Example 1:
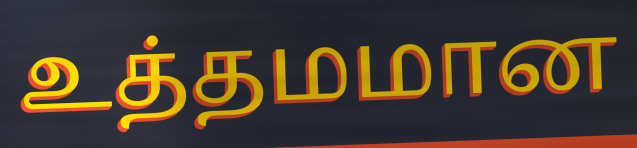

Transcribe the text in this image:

உத்தமமான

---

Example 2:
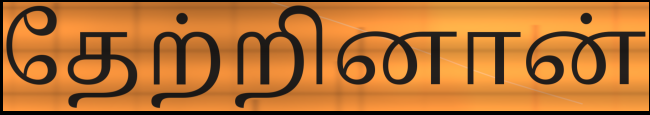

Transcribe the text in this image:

தேற்றினான்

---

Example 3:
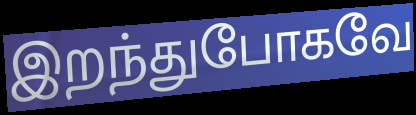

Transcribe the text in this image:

இறந்துபோகவே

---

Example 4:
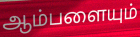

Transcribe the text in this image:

ஆம்பளையும்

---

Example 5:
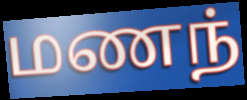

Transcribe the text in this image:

மணந்